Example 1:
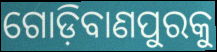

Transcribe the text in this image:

ଗୋଡ଼ିବାଣପୁରକୁ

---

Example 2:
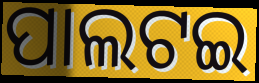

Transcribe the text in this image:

ପାଲଟଇ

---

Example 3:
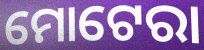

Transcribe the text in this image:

ମୋଟେରା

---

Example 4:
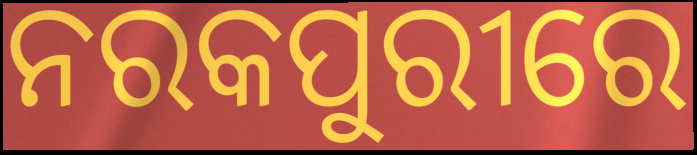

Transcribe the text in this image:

ନରକପୁରୀରେ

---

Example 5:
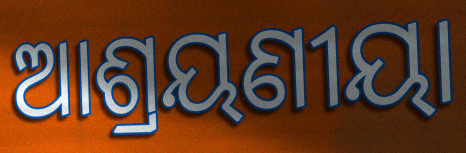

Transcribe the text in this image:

ଆଶ୍ରୟଣୀୟା